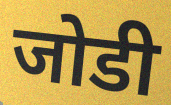
जोडी